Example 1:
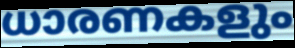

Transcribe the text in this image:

ധാരണകളും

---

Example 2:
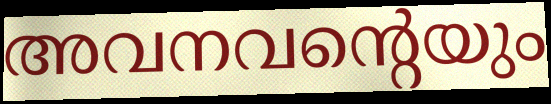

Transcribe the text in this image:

അവനവന്റെയും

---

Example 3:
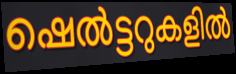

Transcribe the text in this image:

ഷെൽട്ടറുകളിൽ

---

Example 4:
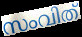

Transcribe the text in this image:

സംവിത്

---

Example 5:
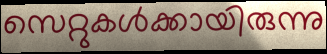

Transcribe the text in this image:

സെറ്റുകൾക്കായിരുന്നു